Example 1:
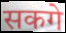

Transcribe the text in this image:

सकगे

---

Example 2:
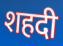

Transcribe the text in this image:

शहदी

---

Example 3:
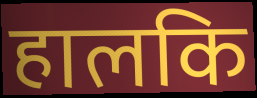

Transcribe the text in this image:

हालकि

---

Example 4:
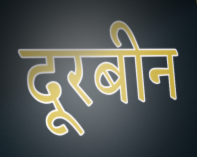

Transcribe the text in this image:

दूरबीन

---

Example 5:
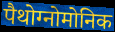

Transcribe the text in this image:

पैथोग्नोमोनिक